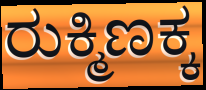
ರುಕ್ಮಿಣಕ್ಕ